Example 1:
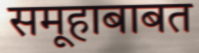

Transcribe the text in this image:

समूहाबाबत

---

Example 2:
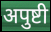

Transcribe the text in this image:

अपुष्टी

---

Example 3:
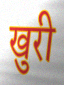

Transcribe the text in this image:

खुरी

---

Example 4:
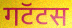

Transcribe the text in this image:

गटॅटस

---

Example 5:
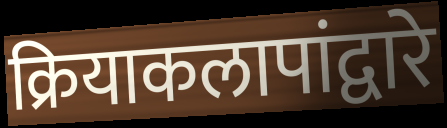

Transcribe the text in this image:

क्रियाकलापांद्वारे